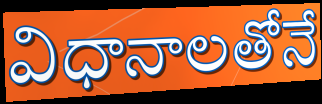
విధానాలతోనే